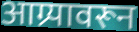
आग्र्यावरून